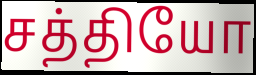
சத்தியோ